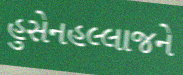
હુસેનહલ્લાજને